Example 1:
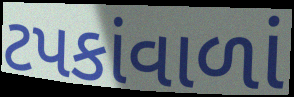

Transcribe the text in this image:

ટપકાંવાળાં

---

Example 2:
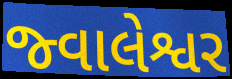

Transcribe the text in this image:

જ્વાલેશ્વર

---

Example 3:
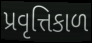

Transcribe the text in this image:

પ્રવૃત્તિકાળ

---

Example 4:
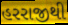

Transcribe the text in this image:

હરરાજીથી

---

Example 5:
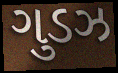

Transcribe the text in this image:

ગુડઝ